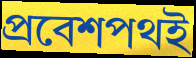
প্রবেশপথই